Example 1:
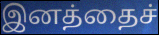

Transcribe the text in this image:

இனத்தைச்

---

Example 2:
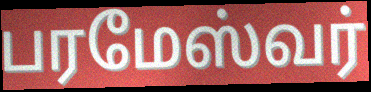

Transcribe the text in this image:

பரமேஸ்வர்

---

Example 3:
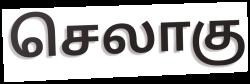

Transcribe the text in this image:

செலாகு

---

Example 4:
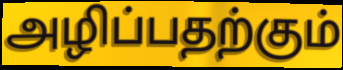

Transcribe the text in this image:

அழிப்பதற்கும்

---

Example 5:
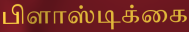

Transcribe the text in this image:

பிளாஸ்டிக்கை